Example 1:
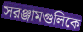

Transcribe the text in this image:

সরঞ্জামগুলিকে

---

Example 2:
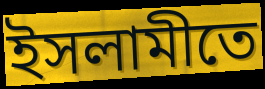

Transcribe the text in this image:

ইসলামীতে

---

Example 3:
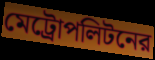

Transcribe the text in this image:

মেট্রোপলিটনের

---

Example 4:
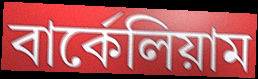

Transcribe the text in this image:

বার্কেলিয়াম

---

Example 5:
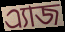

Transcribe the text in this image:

এ্যাজ